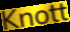
Knott